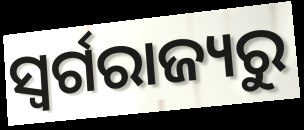
ସ୍ବର୍ଗରାଜ୍ୟରୁ